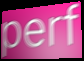
perf